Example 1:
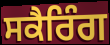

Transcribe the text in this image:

ਸਕੈਰਿੰਗ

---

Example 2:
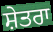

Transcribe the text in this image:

ਸ਼ੇਤਰਾ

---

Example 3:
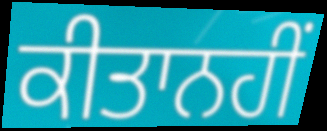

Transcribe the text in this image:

ਕੀਤਾਨਹੀਂ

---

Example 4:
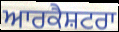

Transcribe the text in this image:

ਆਰਕੈਸ਼ਟਰਾ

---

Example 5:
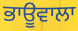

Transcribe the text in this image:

ਭਾਊਵਾਲਾ